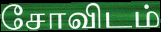
சோவிடம்